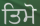
ਤਿਮੋ